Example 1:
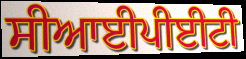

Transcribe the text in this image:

ਸੀਆਈਪੀਈਟੀ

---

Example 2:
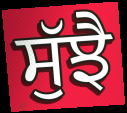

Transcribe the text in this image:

ਸੁੱਝੈ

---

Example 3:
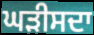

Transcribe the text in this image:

ਘੜੀਸਦਾ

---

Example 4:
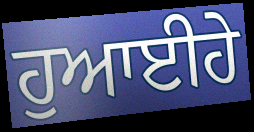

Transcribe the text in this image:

ਹੁਆਈਹੇ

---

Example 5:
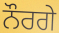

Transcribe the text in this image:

ਨੌਰਗੇ